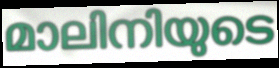
മാലിനിയുടെ